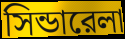
সিন্ডারেলা